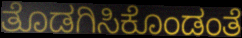
ತೊಡಗಿಸಿಕೊಂಡಂತೆ